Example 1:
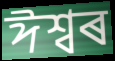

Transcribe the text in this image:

ঈশ্বৰ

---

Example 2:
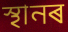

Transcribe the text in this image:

স্থানৰ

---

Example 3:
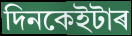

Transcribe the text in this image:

দিনকেইটাৰ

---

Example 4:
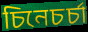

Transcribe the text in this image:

চিনেচৰ্চা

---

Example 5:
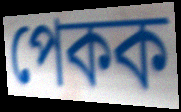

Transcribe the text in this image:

পেকক